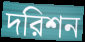
দরিশন